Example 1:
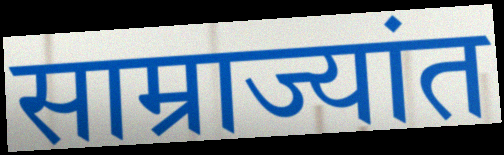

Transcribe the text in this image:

साम्राज्यांत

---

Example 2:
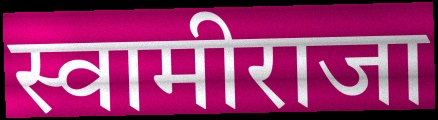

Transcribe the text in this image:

स्वामीराजा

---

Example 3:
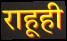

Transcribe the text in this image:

राहूही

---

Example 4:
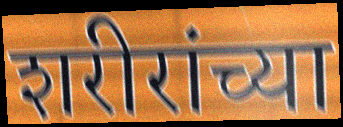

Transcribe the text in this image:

शरीरांच्या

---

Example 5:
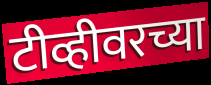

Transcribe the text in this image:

टीव्हीवरच्या